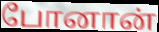
போனான்